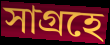
সাগ্রহে